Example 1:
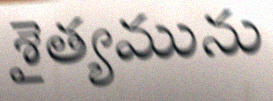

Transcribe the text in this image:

శైత్యమును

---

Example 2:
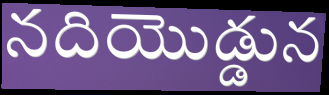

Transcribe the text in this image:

నదియొడ్డున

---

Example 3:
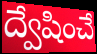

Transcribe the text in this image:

ద్వేషించే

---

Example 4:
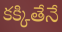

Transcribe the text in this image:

కక్కితేనే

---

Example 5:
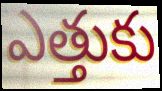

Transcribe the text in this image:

ఎత్తుకు